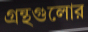
গ্রন্থগুলোর